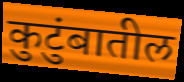
कुटुंबातील